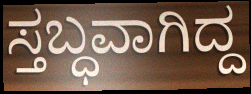
ಸ್ತಬ್ಧವಾಗಿದ್ದ